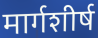
मार्गशीर्ष